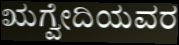
ಋಗ್ವೇದಿಯವರ